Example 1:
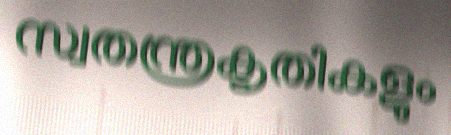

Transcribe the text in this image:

സ്വതന്ത്രകൃതികളും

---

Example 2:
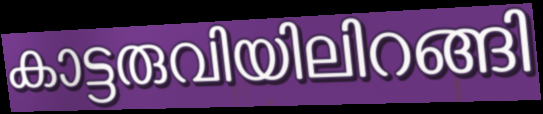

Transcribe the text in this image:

കാട്ടരുവിയിലിറങ്ങി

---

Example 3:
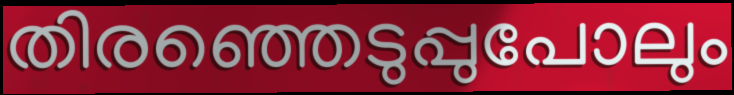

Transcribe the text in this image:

തിരഞ്ഞെടുപ്പുപോലും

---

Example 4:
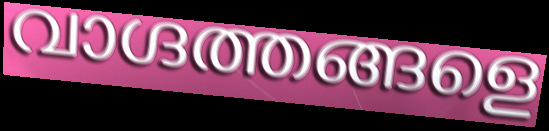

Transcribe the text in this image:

വാഗ്ദത്തങ്ങളെ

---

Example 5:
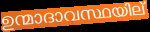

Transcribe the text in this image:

ഉന്മാദാവസ്ഥയില്